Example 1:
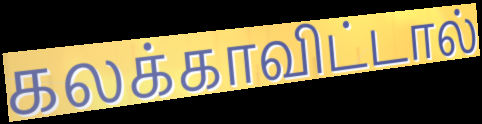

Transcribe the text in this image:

கலக்காவிட்டால்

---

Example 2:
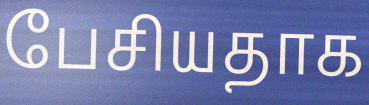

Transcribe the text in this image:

பேசியதாக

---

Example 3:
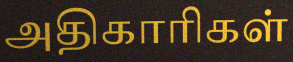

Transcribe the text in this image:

அதிகாரிகள்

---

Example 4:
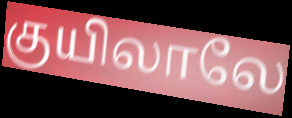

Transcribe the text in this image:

குயிலாலே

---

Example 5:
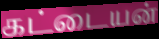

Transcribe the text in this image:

கட்டையன்